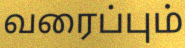
வரைப்பும்